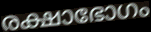
രക്ഷാഭോഗം